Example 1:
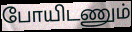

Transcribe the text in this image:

போயிடணும்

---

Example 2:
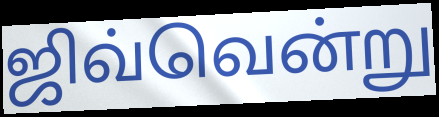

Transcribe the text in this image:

ஜிவ்வென்று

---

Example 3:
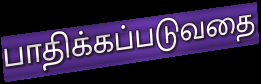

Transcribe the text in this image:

பாதிக்கப்படுவதை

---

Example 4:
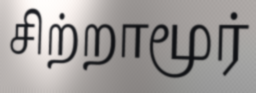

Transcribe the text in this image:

சிற்றாமூர்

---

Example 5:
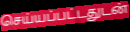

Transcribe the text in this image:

செய்யப்பட்டதுடன்